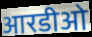
आरडीओ